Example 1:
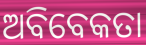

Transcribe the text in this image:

ଅବିବେକତା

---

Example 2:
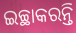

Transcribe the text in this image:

ଇଚ୍ଛାକରନ୍ତି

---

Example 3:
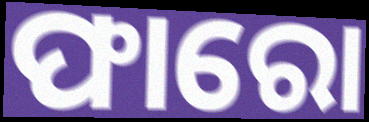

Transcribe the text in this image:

ଫାରୋ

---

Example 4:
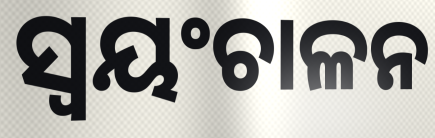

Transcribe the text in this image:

ସ୍ବୟଂଚାଳନ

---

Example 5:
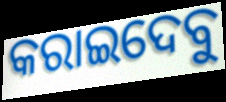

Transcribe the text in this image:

କରାଇଦେବୁ